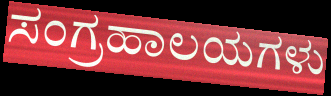
ಸಂಗ್ರಹಾಲಯಗಳು